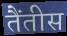
तैंतीस